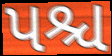
પશ્ચ